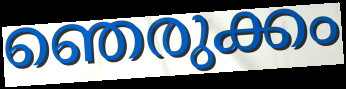
ഞെരുക്കം